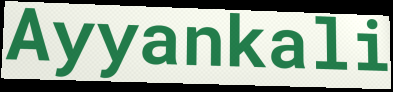
Ayyankali